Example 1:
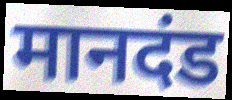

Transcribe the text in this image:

मानदंड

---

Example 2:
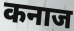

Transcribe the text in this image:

कनाज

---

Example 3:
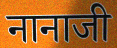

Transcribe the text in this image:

नानाजी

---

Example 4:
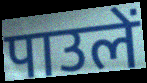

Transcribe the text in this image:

पाउलें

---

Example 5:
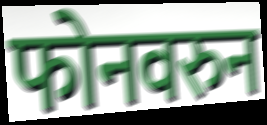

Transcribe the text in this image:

फोनवरुन